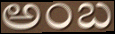
అంబ